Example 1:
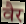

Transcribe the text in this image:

वैर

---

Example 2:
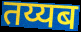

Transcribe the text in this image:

तय्यब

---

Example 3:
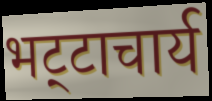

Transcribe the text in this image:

भट्‍टाचार्य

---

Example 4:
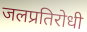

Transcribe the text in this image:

जलप्रतिरोधी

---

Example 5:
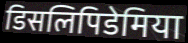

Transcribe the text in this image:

डिसलिपिडेमिया